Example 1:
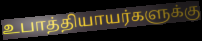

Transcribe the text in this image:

உபாத்தியாயர்களுக்கு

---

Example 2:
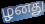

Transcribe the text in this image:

ழனது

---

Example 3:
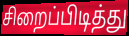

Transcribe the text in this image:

சிறைப்பிடித்து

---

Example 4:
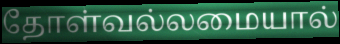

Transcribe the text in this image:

தோள்வல்லமையால்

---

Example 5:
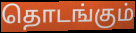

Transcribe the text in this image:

தொடங்கும்